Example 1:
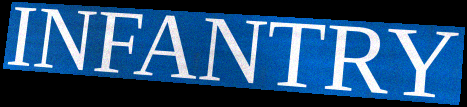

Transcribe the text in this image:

INFANTRY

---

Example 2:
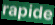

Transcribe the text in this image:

rapide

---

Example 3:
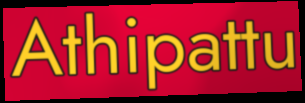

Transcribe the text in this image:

Athipattu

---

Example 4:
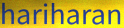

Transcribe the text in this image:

hariharan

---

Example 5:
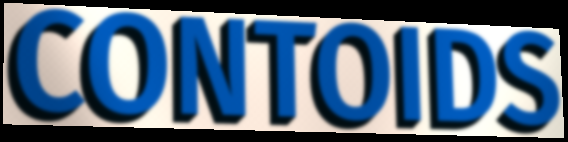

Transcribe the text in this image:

CONTOIDS